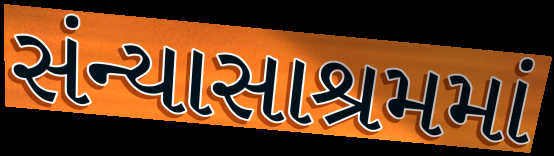
સંન્યાસાશ્રમમાં